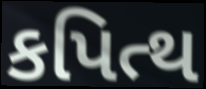
કપિત્થ